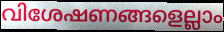
വിശേഷണങ്ങളെല്ലാം